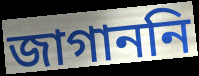
জাগাননি